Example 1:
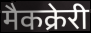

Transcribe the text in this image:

मैकक्रेरी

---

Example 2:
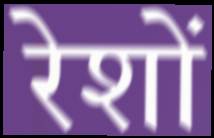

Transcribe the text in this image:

रेशों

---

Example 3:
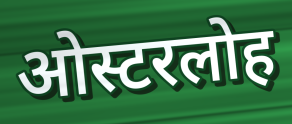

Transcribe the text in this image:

ओस्टरलोह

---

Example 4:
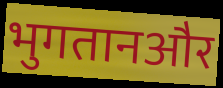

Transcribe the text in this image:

भुगतानऔर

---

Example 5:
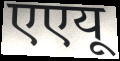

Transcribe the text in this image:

एएयू